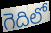
గెదిలో